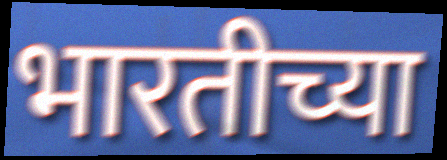
भारतीच्‍या